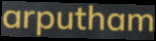
arputham